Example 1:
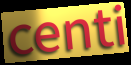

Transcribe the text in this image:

centi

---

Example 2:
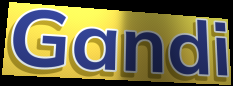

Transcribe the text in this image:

Gandi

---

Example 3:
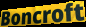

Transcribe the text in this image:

Boncroft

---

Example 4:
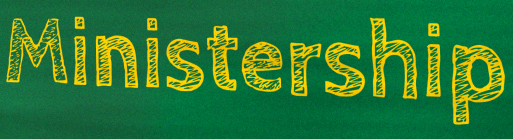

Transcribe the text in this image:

Ministership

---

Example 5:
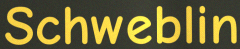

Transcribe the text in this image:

Schweblin